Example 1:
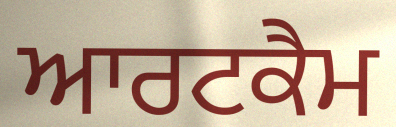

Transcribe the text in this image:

ਆਰਟਕੈਮ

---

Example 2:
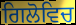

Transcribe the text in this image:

ਗਿਲੋਵਿਚ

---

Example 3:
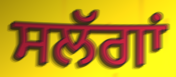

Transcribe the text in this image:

ਸਲੱਗਾਂ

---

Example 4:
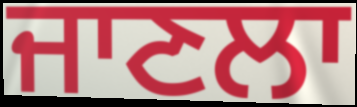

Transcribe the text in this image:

ਜਾਣਲਾ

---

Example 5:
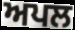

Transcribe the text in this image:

ਅਪਲ